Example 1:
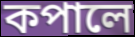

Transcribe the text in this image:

কপালে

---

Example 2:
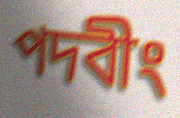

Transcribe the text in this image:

পদবীং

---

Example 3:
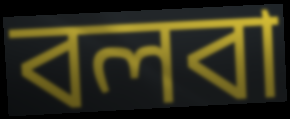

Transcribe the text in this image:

বলবা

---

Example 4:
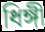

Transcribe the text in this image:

ধিঙ্গী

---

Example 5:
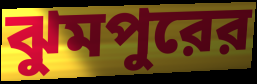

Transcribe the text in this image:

ঝুমপুরের